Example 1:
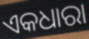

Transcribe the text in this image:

ଏକଧାରା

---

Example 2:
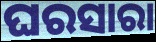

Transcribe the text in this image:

ଘରସାରା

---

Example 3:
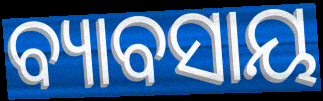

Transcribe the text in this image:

ବ୍ୟାବସାୟ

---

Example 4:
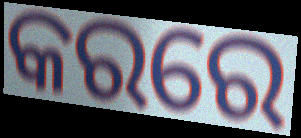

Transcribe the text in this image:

କରରେ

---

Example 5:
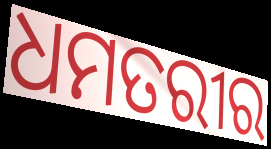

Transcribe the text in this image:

ଧମତରୀର